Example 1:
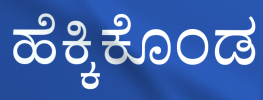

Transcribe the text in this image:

ಹೆಕ್ಕಿಕೊಂಡ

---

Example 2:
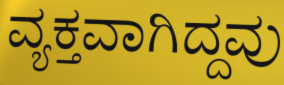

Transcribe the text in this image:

ವ್ಯಕ್ತವಾಗಿದ್ದವು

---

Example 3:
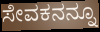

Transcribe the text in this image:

ಸೇವಕನನ್ನೂ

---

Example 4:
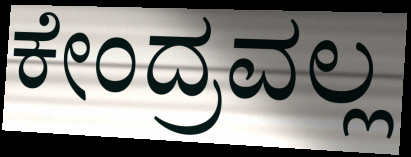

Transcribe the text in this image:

ಕೇಂದ್ರವಲ್ಲ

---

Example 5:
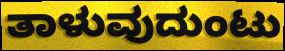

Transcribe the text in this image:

ತಾಳುವುದುಂಟು